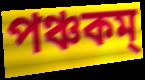
পঞ্চকম্